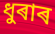
ধুৰাৰ